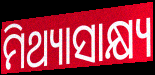
ମିଥ୍ୟାସାକ୍ଷ୍ୟ